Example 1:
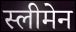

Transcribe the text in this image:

स्लीमेन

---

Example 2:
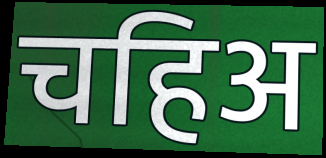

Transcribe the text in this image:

चहिअ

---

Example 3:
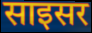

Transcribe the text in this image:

साइसर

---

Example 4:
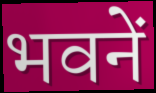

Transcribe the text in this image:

भवनें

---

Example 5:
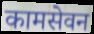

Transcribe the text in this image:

कामसेवन